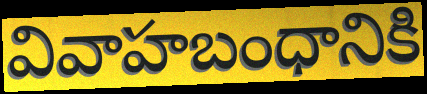
వివాహబంధానికి